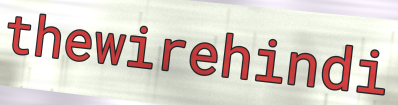
thewirehindi